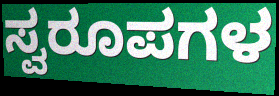
ಸ್ವರೂಪಗಳ